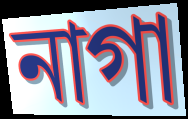
নাগা